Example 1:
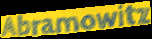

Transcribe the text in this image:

Abramowitz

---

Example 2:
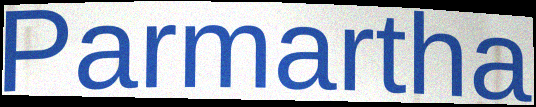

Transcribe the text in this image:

Parmartha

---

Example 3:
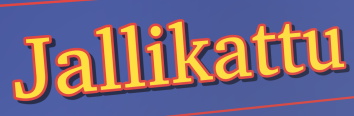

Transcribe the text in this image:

Jallikattu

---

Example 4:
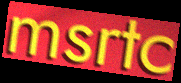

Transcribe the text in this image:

msrtc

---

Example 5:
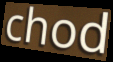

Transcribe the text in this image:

chod